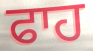
ਫਾਹ